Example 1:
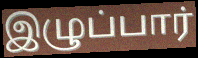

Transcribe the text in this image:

இழுப்பார்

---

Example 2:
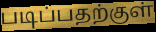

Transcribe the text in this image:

படிப்பதற்குள்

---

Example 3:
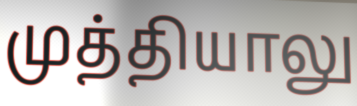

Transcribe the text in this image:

முத்தியாலு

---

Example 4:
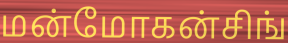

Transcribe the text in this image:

மன்மோகன்சிங்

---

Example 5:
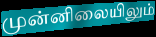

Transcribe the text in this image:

முன்னிலையிலும்